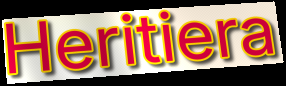
Heritiera